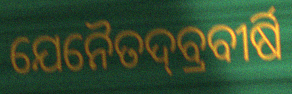
ଯେନୈତଦ୍‌ବ୍ରବୀର୍ଷି